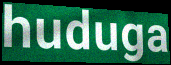
huduga